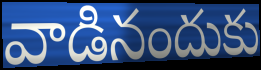
వాడినందుకు